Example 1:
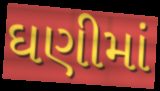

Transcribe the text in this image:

ઘણીમાં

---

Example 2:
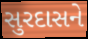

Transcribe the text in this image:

સુરદાસને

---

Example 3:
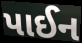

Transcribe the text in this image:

પાઈન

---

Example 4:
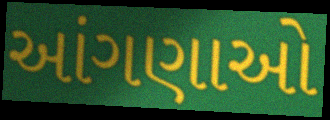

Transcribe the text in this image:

આંગણાઓ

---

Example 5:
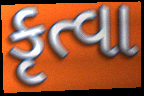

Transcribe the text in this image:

કૃત્વા